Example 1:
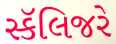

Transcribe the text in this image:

સ્કૅલિજરે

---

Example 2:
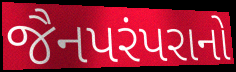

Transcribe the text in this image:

જૈનપરંપરાનો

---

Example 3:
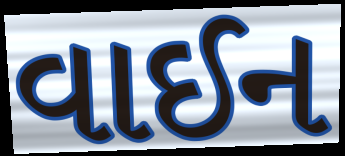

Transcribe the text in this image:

વાઈન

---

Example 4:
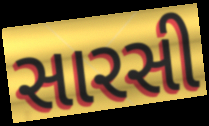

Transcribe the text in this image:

સારસી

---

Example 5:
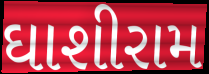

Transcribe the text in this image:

ઘાશીરામ